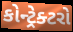
કોન્ટ્રેક્ટરો